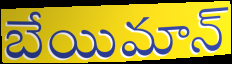
బేయిమాన్